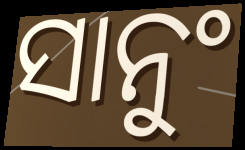
ସାନୁଂ